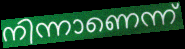
നിന്നാണെന്ന്